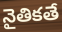
నైతికతే